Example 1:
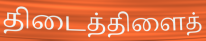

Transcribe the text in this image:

திடைத்திளைத்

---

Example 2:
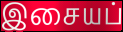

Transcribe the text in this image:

இசையப்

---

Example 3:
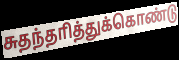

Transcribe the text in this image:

சுதந்தரித்துக்கொண்டு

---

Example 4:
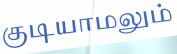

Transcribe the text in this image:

குடியாமலும்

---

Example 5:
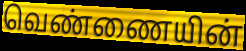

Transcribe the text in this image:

வெண்ணையின்